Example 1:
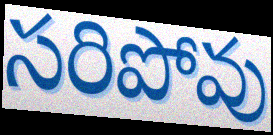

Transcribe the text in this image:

సరిపోవు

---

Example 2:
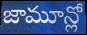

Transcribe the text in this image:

జామూన్లో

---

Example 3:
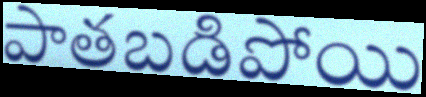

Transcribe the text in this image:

పాతబడిపోయి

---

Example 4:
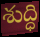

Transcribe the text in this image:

శుద్ధి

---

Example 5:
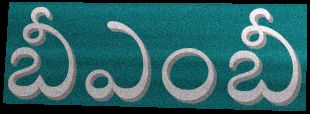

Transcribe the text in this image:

బీఎంబీ